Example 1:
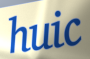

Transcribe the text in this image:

huic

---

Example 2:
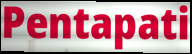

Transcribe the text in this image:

Pentapati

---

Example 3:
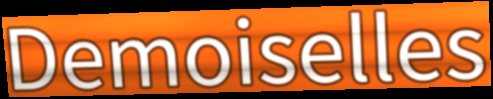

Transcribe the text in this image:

Demoiselles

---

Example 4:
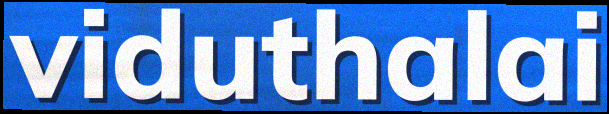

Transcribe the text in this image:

viduthalai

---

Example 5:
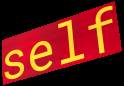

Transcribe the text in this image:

self